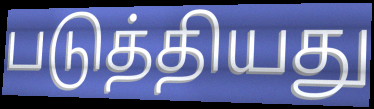
படுத்தியது